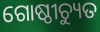
ଗୋଷ୍ଠୀଚ୍ୟୁତ